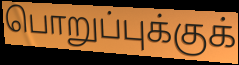
பொறுப்புக்குக்